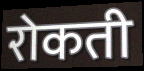
रोकती